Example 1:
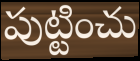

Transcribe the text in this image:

పుట్టించు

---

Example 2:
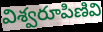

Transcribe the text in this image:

విశ్వరూపిణివి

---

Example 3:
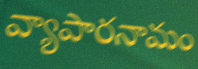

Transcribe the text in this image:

వ్యాపారనామం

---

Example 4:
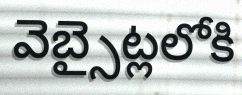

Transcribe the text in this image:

వెబ్సైట్లలోకి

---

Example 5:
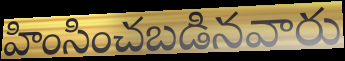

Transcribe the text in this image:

హింసించబడినవారు